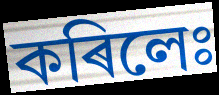
কৰিলেঃ